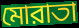
মোরাতা